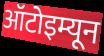
ऑटोइम्‍यून